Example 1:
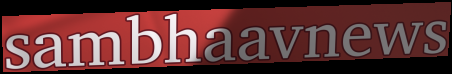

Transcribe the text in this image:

sambhaavnews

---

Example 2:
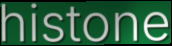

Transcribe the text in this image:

histone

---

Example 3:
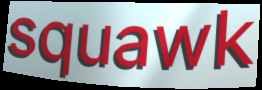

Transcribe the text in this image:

squawk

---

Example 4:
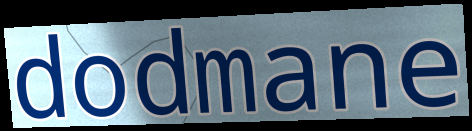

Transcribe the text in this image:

dodmane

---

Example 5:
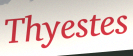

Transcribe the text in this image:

Thyestes